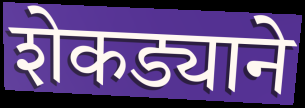
शेकड्याने